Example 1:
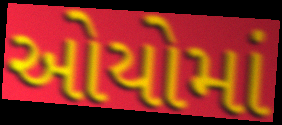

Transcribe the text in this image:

ઓયોમાં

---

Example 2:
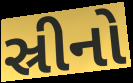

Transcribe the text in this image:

સ્રીનો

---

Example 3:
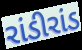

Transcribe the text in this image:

રાંડીરાંડ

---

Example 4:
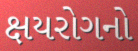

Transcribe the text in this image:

ક્ષયરોગનો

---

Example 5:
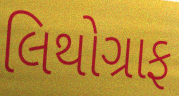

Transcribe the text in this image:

લિથોગ્રાફ